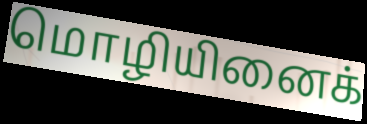
மொழியினைக்